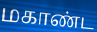
மகாண்ட